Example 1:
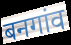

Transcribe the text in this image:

बनगांव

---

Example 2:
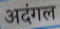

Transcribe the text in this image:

अदंगल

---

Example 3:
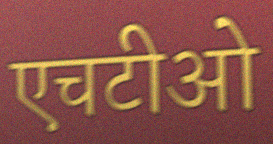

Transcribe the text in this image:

एचटीओ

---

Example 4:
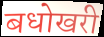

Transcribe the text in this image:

बधोखरी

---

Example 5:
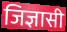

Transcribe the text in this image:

जिज्ञासी